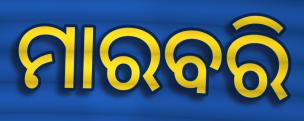
ମାରବରି